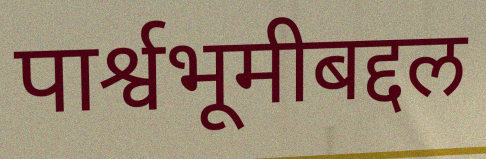
पार्श्वभूमीबद्दल